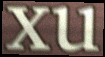
xu